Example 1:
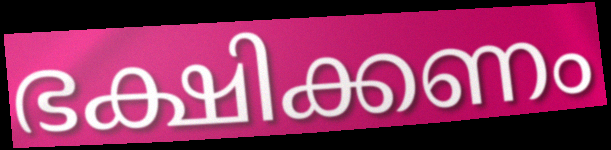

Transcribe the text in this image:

ഭക്ഷിക്കണം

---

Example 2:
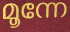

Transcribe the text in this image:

മൂന്നേ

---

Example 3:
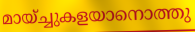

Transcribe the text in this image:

മായ്ച്ചുകളയാനൊത്തു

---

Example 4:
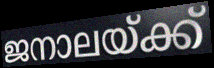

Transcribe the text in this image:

ജനാലയ്ക്ക്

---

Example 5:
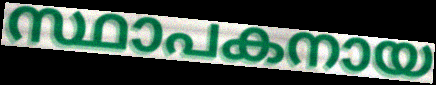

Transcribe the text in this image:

സ്ഥാപകനായ